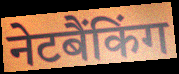
नेटबैंकिंग